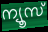
ന്യൂസ്